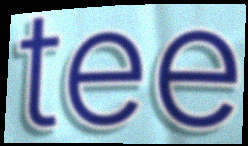
tee